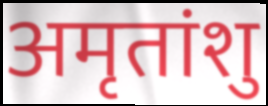
अमृतांशु